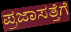
ಪ್ರಜಾಸತ್ತೆಗೆ